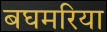
बघमरिया